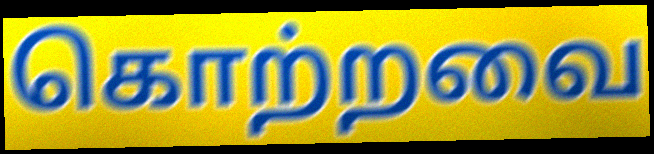
கொற்றவை